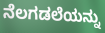
ನೆಲಗಡಲೆಯನ್ನು